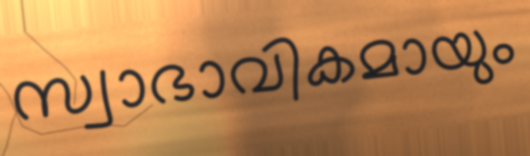
സ്വാഭാവികമായും